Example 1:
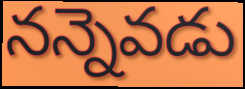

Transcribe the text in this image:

నన్నెవడు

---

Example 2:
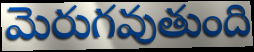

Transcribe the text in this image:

మెరుగవుతుంది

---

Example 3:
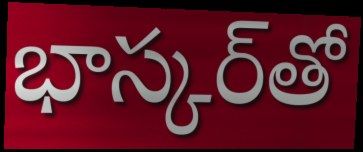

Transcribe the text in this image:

భాస్కర్‌తో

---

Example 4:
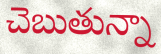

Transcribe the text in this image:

చెబుతున్నా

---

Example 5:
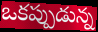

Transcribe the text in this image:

ఒకప్పుడున్న